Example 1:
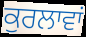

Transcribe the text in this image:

ਕੁਰਲਾਵਾਂ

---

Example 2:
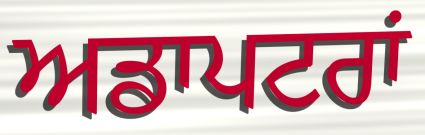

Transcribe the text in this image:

ਅਡਾਪਟਰਾਂ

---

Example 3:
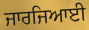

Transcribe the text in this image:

ਜਾਰਜਿਆਈ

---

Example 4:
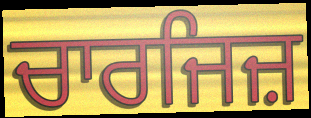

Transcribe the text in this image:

ਚਾਰਜਿਜ਼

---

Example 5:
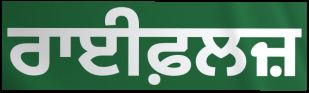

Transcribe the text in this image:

ਰਾਈਫ਼ਲਜ਼